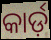
କାର୍ଡ଼